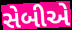
સેબીએ